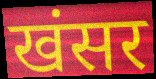
खंसर